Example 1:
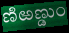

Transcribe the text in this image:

ణిఱణ్డుం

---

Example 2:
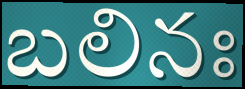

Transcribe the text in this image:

బలినః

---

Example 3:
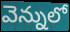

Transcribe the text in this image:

వెన్నులో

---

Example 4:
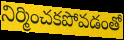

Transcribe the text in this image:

నిర్మించకపోవడంతో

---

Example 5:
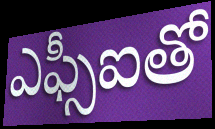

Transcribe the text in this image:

ఎఫ్సీఐతో